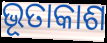
ଭୂତାକାଶ